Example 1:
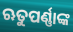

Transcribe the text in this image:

ଋତୁପର୍ଣ୍ଣାଙ୍କ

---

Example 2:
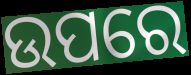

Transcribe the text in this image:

ଉପରେ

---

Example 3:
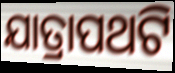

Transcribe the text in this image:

ଯାତ୍ରାପଥଟି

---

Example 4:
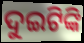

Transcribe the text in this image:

ଦୁଇଟିଙ୍କି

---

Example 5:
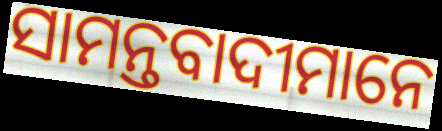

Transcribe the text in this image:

ସାମନ୍ତବାଦୀମାନେ